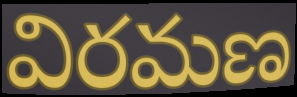
విరమణ